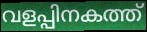
വളപ്പിനകത്ത്